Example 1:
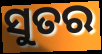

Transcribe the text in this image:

ସୁତର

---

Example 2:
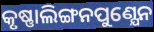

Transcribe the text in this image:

କୃଷ୍ଣାଲିଙ୍ଗନପୁଣ୍ଯେନ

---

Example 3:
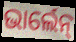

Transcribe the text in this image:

ଭାର୍ଲେନ୍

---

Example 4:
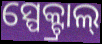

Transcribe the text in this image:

ସ୍ପେକ୍ଟ୍ରାଲ୍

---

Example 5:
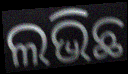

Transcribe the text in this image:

ଲଭିଛ